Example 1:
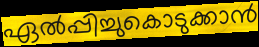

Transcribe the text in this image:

ഏൽപ്പിച്ചുകൊടുക്കാൻ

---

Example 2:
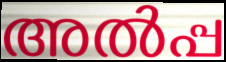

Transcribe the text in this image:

അൽപ്പ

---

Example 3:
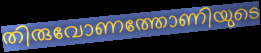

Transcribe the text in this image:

തിരുവോണത്തോണിയുടെ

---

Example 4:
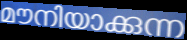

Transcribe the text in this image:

മൗനിയാക്കുന്ന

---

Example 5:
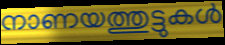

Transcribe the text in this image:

നാണയത്തുട്ടുകൾ